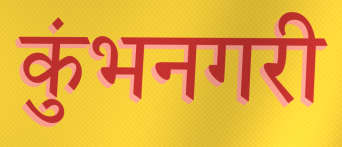
कुंभनगरी